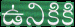
ఉనికికి